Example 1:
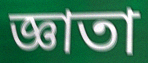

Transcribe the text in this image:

জ্ঞাতা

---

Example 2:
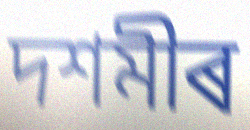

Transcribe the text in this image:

দশমীৰ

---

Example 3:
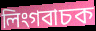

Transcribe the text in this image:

লিংগবাচক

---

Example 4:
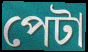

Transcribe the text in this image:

পেটা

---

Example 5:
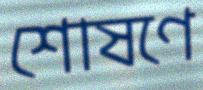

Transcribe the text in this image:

শোষণে